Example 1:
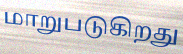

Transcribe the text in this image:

மாறுபடுகிறது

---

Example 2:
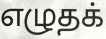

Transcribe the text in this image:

எழுதக்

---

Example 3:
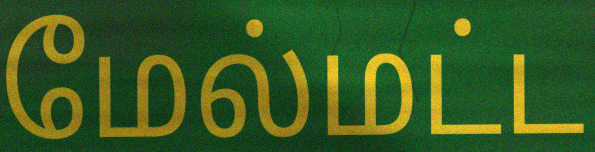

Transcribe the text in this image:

மேல்மட்ட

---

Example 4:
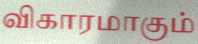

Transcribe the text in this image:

விகாரமாகும்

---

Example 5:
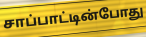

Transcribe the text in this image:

சாப்பாட்டின்போது